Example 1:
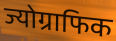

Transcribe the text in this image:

ज्योग्राफिक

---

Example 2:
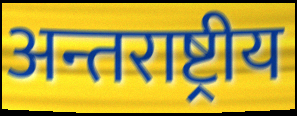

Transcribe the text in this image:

अन्तराष्ट्रीय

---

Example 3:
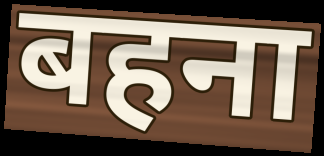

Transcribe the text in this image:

बहना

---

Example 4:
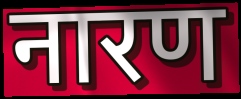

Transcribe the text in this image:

नारण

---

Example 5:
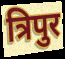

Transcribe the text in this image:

त्रिपुर